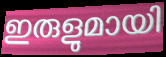
ഇരുളുമായി